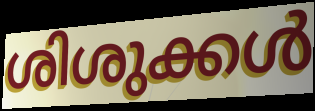
ശിശുക്കൾ